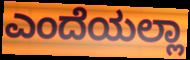
ಎಂದೆಯಲ್ಲಾ